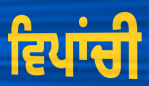
ਵਿਪਾਂਚੀ